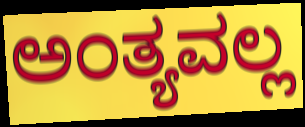
ಅಂತ್ಯವಲ್ಲ